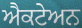
ਐਕਟੇਅਨ